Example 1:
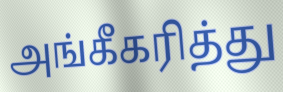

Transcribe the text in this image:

அங்கீகரித்து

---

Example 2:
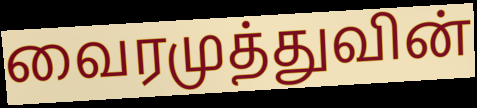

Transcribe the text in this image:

வைரமுத்துவின்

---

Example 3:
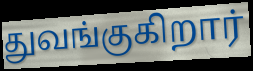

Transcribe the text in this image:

துவங்குகிறார்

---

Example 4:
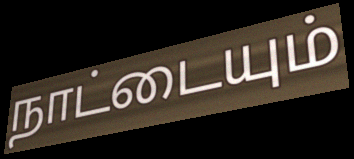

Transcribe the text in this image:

நாட்டையும்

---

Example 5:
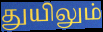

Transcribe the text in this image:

துயிலும்